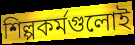
শিল্পকর্মগুলোই